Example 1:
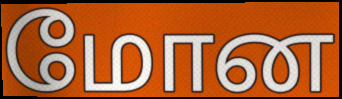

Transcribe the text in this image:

மோன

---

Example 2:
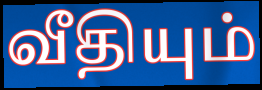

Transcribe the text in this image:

வீதியும்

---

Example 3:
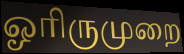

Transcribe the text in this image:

ஓரிருமுறை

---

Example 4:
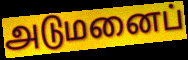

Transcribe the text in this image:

அடுமனைப்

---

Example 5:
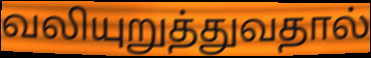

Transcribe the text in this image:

வலியுறுத்துவதால்